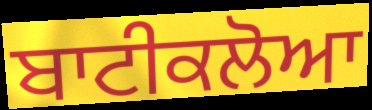
ਬਾਟੀਕਲੋਆ